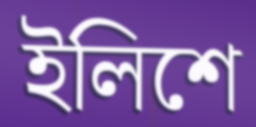
ইলিশে